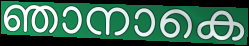
ഞാനാകെ